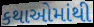
કથાઓમાંથી